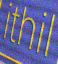
ithil